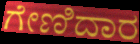
ಗೇಣಿದಾರ